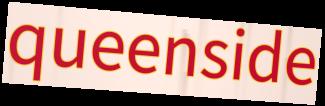
queenside